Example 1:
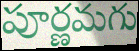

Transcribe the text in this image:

పూర్ణమగు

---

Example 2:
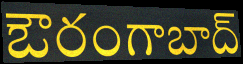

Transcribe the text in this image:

ఔరంగాబాద్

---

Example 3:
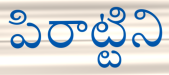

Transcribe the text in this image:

పిరాట్టిని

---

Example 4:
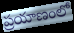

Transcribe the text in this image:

ప్రయాణంలో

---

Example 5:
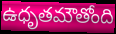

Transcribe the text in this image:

ఉధృతమౌతోంది